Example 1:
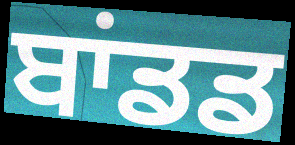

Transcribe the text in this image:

ਬਾਂਡਡ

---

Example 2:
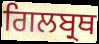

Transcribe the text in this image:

ਗਿਲਬ੍ਰਥ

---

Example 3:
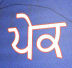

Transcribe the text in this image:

ਪੇਕ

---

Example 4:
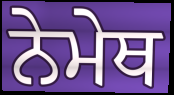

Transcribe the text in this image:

ਨੇਮੇਥ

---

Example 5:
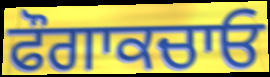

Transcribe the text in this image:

ਫੌਗਾਕਚਾਓ